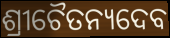
ଶ୍ରୀଚୈତନ୍ୟଦେବ